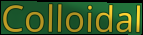
Colloidal